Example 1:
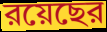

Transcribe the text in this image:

রয়েছের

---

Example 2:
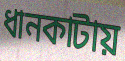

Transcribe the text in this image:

ধানকাটায়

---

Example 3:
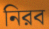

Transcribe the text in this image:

নিরব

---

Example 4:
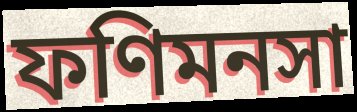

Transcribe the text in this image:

ফণিমনসা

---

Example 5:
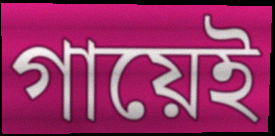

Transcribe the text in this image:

গায়েই